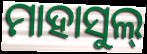
ମାହାସୁଲ୍